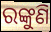
ରଙ୍କୁଣି